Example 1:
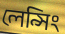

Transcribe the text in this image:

লেন্সিং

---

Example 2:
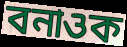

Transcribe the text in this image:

বনাওক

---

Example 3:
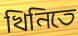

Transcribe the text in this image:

খিনিতে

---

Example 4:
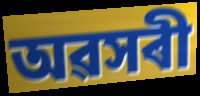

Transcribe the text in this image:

অৱসৰী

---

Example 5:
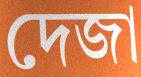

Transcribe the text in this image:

দেজা